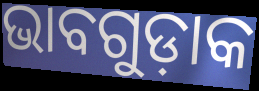
ଭାବଗୁଡ଼ାକ